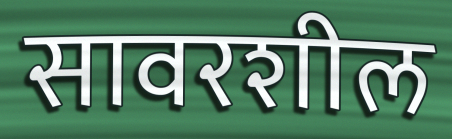
सावरशील